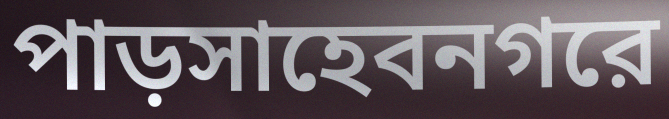
পাড়সাহেবনগরে